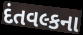
દંતવલ્કના